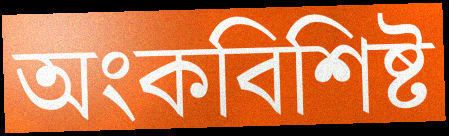
অংকবিশিষ্ট